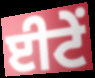
ਈਟੇਂ